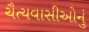
ચૈત્યવાસીઓનું